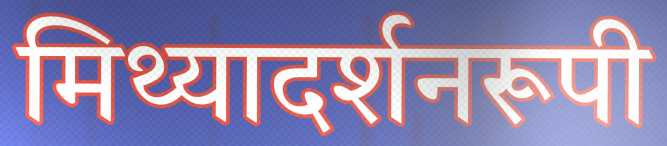
मिथ्यादर्शनरूपी